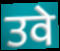
उवे